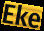
Eke